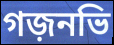
গজ়নভি